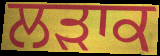
ਲੜਾਕ